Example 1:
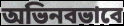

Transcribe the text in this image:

অভিনবভাবে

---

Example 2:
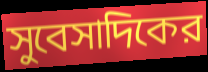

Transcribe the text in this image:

সুবেসাদিকের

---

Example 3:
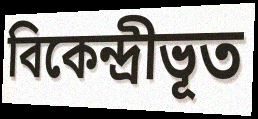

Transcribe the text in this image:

বিকেন্দ্রীভূত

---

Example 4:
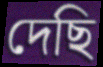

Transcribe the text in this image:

দেছি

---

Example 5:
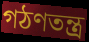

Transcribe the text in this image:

গঠণতন্ত্র